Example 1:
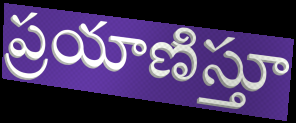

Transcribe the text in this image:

ప్రయాణిస్తూ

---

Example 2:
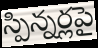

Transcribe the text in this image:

స్పిన్నర్లపై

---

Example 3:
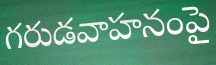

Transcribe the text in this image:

గరుడవాహనంపై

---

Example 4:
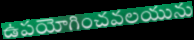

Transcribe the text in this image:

ఉపయోగించవలయును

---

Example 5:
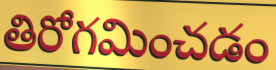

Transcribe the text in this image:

తిరోగమించడం